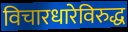
विचारधारेविरुद्ध